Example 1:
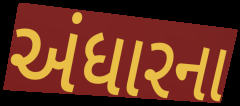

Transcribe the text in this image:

અંધારના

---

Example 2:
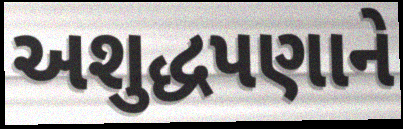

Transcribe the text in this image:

અશુદ્ધપણાને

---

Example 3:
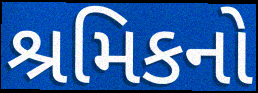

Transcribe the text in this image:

શ્રમિકનો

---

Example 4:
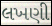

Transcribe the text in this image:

લખણી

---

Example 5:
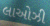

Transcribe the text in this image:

લાઓઝી